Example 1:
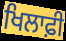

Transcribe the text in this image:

ਖਿਲਾਫ਼ੀ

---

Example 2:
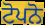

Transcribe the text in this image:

ਟੋਪਨੋ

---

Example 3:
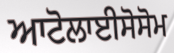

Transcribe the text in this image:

ਆਟੋਲਾਈਸੋਸੋਮ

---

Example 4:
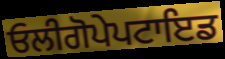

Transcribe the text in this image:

ਓਲੀਗੋਪੇਪਟਾਇਡ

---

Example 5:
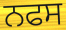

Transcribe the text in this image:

ਨਫਸ